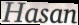
Hasan